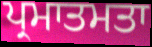
ਪ੍ਰਮਾਤਮਤਾ